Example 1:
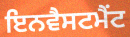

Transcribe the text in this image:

ਇਨਵੈਸਟਮੈਂਟ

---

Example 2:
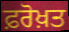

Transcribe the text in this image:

ਫ਼ਰੋਖ਼ਤ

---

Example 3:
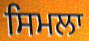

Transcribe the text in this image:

ਸਿਮਲਾ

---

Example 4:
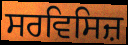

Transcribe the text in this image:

ਸਰਵਿਸਿਜ਼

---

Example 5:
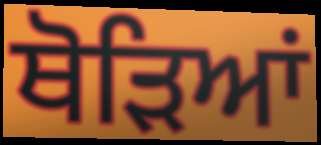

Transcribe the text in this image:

ਥੋੜਿਆਂ